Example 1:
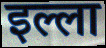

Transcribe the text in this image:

इल्ला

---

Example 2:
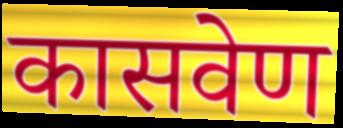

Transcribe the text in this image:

कासवेण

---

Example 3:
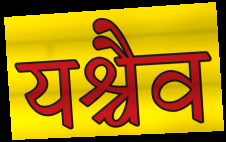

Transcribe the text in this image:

यश्चैव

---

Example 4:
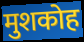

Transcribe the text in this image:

मुशकोह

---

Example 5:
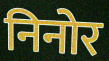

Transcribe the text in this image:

निनोर